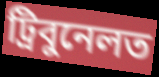
ট্ৰিবুনেলত